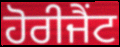
ਹੋਰੀਜੈਂਟ